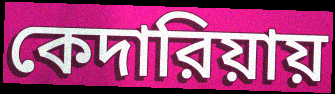
কেদারিয়ায়